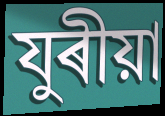
যুৰীয়া